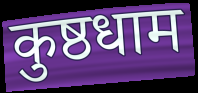
कुष्ठधाम